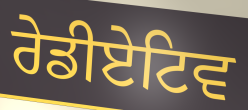
ਰੇਡੀਏਟਿਵ